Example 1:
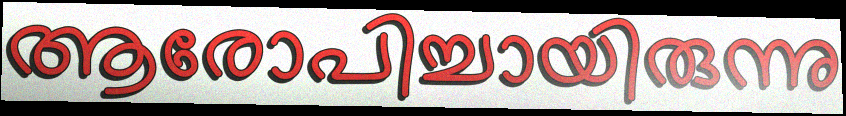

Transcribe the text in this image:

ആരോപിച്ചായിരുന്നു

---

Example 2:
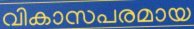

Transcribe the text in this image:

വികാസപരമായ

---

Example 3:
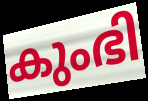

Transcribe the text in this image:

കുംഭി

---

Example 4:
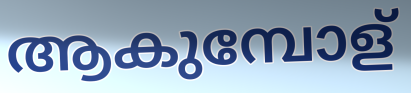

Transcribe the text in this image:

ആകുമ്പോള്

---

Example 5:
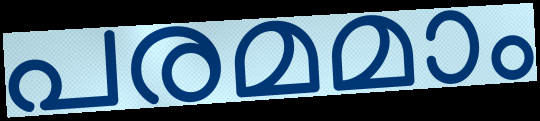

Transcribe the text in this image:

പരമമാം